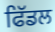
ਫਿੱਡਲ